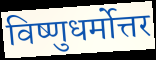
विष्णुधर्मोत्तर